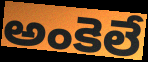
అంకెలే